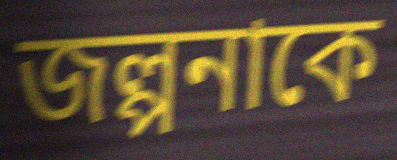
জল্পনাকে